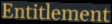
Entitlement